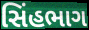
સિંહભાગ